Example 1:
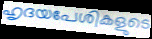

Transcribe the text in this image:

ഹൃദയപേശികളുടെ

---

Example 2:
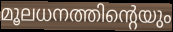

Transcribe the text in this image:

മൂലധനത്തിന്റെയും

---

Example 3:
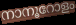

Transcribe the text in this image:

നാനൂറോളം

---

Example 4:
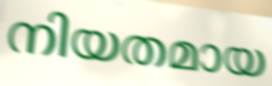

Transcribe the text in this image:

നിയതമായ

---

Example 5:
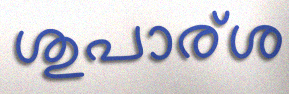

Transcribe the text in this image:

ശുപാര്ശ